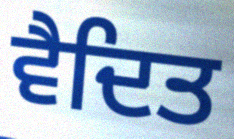
ਵੈਦਿਤ